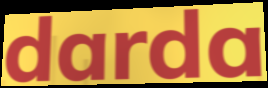
darda